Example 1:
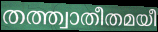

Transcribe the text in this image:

തത്ത്വാതീതമയീ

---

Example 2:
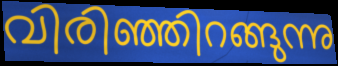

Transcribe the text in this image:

വിരിഞ്ഞിറങ്ങുന്നു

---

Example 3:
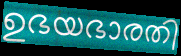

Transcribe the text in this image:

ഉഭയഭാരതി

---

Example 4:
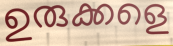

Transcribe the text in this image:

ഉരുക്കളെ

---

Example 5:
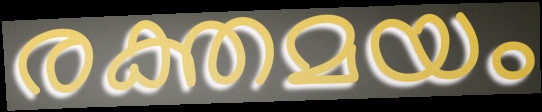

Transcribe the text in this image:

രക്തമയം